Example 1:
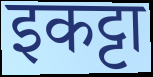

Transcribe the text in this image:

इकट्टा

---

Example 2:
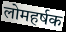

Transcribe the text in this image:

लोमहर्षक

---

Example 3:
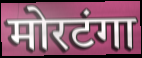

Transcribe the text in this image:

मोरटंगा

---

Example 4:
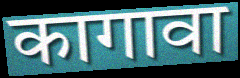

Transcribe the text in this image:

कागावा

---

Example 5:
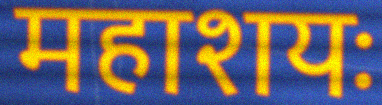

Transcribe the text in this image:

महाशयः